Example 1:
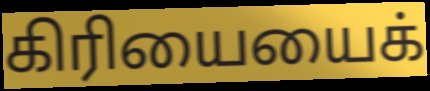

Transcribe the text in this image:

கிரியையைக்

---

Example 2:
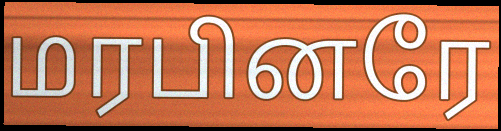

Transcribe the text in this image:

மரபினரே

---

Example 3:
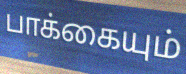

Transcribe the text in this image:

பாக்கையும்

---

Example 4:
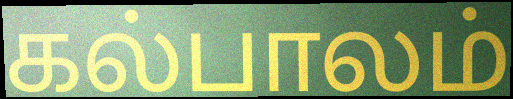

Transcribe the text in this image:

கல்பாலம்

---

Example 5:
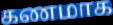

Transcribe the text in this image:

கணமாக